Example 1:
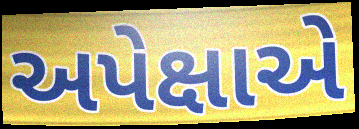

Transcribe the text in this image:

અપેક્ષાએ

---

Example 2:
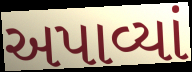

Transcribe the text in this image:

અપાવ્યાં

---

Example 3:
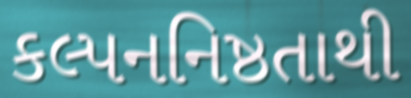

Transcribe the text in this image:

કલ્પનનિષ્ઠતાથી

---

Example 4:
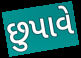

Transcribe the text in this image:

છુપાવે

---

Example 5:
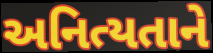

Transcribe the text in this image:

અનિત્યતાને